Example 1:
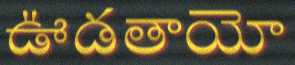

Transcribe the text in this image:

ఊడతాయో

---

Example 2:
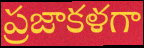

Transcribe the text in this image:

ప్రజాకళగా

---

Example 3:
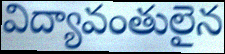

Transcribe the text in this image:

విద్యావంతులైన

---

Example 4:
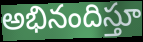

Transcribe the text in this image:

అభినందిస్తూ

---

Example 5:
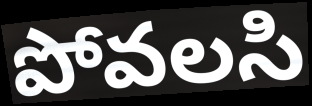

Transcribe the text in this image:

పోవలసి